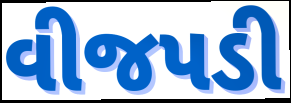
વીજપડી